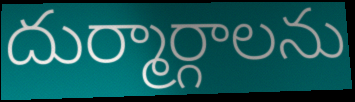
దుర్మార్గాలను